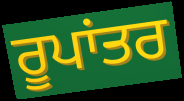
ਰੂਪਾਂਤਰ